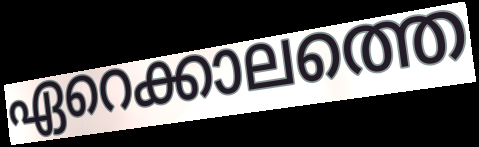
ഏറെക്കാലത്തെ